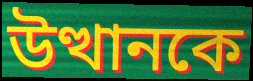
উত্থানকে